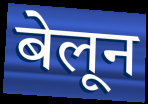
बेलून